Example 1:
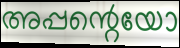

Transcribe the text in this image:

അപ്പന്റെയോ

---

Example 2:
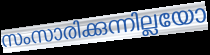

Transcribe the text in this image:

സംസാരിക്കുന്നില്ലയോ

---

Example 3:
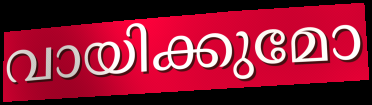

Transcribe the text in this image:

വായിക്കുമോ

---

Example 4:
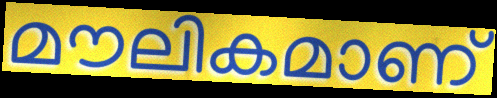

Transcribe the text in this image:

മൗലികമാണ്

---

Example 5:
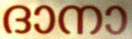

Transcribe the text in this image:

ദാനാ